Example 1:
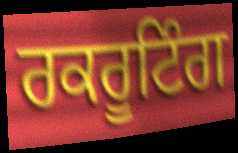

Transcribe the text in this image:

ਰਕਰੂਟਿੰਗ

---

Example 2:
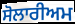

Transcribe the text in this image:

ਸੋਲਾਰੀਅਮ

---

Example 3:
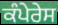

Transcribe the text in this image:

ਕੰਪੇਰੇਸ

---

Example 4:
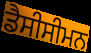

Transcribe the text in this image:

ਡੈਸੀਸੀਮਨ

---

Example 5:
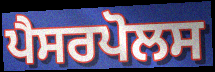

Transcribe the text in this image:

ਪੈਸਰਪੋਲਸ